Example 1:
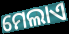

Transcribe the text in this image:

ମେଲାଏ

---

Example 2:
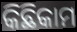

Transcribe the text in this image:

କିଛିକାମ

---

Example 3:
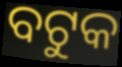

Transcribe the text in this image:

ବଟୁକ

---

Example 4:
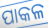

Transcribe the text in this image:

ପାକଳ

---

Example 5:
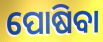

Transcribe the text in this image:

ପୋଷିବା